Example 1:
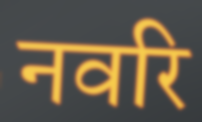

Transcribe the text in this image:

नवरि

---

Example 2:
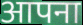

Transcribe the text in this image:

आपना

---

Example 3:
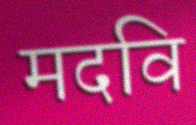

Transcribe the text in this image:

मदवि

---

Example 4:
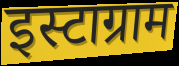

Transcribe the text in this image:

इस्टाग्राम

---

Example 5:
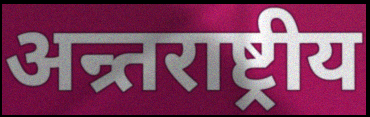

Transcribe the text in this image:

अन्र्तराष्ट्रीय